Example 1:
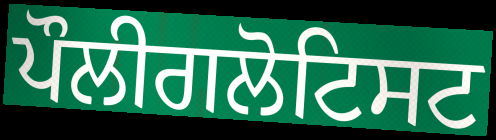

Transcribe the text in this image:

ਪੌਲੀਗਲੋਟਿਸਟ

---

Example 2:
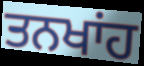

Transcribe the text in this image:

ਤਨਖਾਂਹ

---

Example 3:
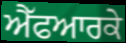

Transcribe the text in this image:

ਐੱਫਆਰਕੇ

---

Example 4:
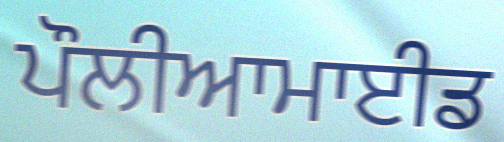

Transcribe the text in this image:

ਪੌਲੀਆਮਾਈਡ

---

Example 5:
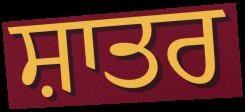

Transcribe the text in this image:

ਸ਼ਾਤਰ